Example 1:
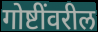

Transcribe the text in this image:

गोष्टींवरील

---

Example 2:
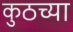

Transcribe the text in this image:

कुठच्या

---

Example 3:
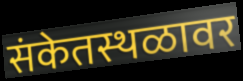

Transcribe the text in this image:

संकेतस्थळावर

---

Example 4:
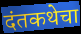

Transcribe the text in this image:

दंतकथेचा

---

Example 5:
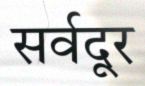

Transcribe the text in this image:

सर्वदूर